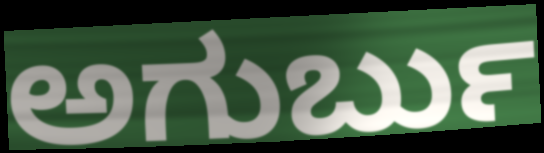
ಅಗುರ್ಬು